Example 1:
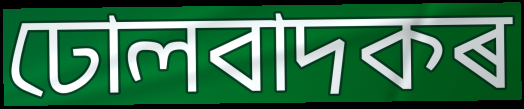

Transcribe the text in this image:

ঢোলবাদকৰ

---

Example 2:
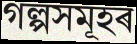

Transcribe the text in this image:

গল্পসমূহৰ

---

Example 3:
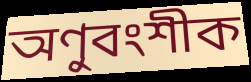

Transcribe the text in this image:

অণুবংশীক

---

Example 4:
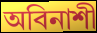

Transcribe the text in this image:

অবিনাশী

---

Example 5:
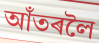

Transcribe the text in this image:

আঁতৰলৈ